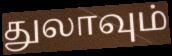
துலாவும்